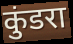
कुंडरा